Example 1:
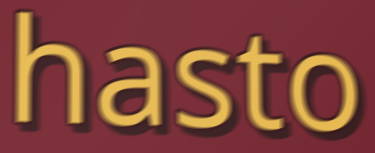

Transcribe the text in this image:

hasto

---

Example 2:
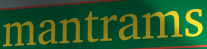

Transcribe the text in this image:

mantrams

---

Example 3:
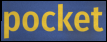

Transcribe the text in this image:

pocket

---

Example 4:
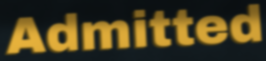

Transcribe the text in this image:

Admitted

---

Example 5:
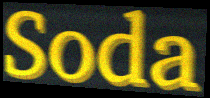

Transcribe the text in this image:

Soda